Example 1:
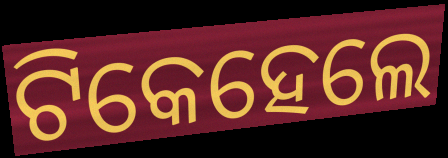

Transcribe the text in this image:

ଟିକେହେଲେ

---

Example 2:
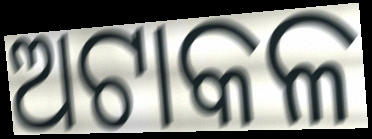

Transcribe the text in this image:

ଅଟାକଳ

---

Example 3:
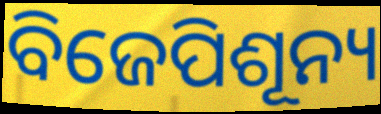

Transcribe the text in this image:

ବିଜେପିଶୂନ୍ୟ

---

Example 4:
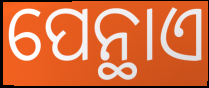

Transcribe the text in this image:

ପେନ୍ଥାଏ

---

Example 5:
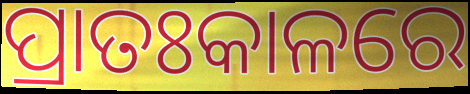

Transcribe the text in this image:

ପ୍ରାତଃକାଳରେ